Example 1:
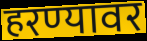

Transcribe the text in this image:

हरण्यावर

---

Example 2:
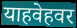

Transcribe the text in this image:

याहवेहवर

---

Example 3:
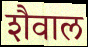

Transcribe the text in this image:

शैवाल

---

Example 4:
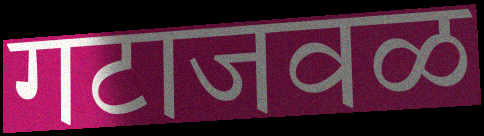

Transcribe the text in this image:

गटाजवळ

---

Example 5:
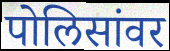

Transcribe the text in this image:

पोलिसांवर